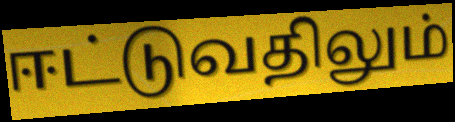
ஈட்டுவதிலும்